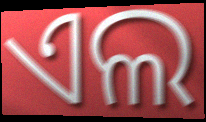
ଏଲ